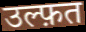
उल्फ़त